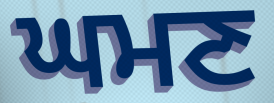
ਘਮਣ